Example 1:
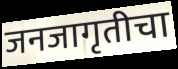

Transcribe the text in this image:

जनजागृतीचा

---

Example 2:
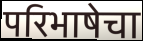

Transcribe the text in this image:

परिभाषेचा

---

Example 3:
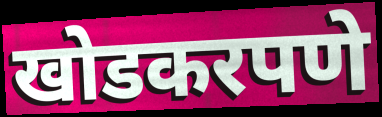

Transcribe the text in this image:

खोडकरपणे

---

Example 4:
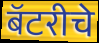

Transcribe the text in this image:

बॅटरीचे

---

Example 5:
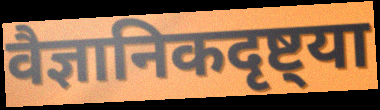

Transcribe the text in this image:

वैज्ञानिकदृष्ट्या